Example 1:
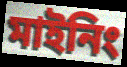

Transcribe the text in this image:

মাইনিং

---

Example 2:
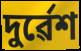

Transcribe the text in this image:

দুৰ্ৱেশ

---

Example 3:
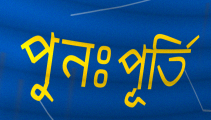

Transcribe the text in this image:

পুনঃপূৰ্তি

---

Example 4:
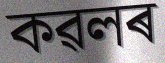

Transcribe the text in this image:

কৱলৰ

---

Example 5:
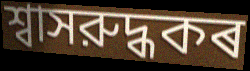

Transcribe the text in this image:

শ্বাসৰুদ্ধকৰ